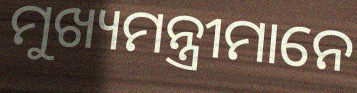
ମୁଖ୍ୟମନ୍ତ୍ରୀମାନେ